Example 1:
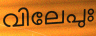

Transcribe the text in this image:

വിലേപുഃ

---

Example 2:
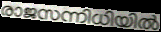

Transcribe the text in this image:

രാജസന്നിധിയിൽ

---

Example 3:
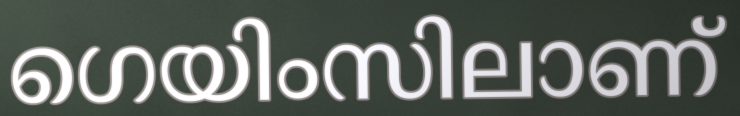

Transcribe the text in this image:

ഗെയിംസിലാണ്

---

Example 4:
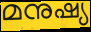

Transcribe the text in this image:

മനുഷ്യ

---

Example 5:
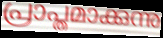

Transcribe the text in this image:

പ്രാപ്തമാക്കുന്നു